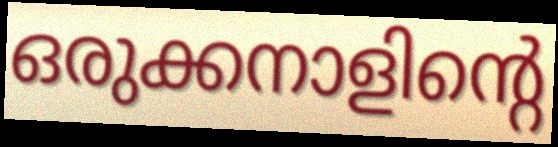
ഒരുക്കനാളിന്റെ